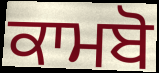
ਕਾਮਬੋ